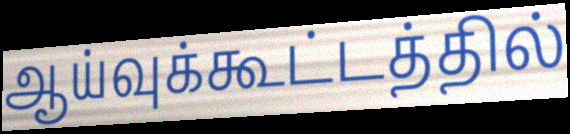
ஆய்வுக்கூட்டத்தில்